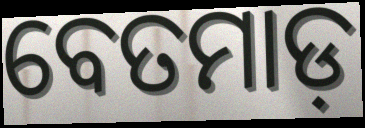
ବେତମାଡ଼